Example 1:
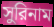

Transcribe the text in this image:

সুরিনাম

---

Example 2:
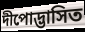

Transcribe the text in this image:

দীপোদ্ভাসিত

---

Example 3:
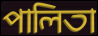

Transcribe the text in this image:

পালিতা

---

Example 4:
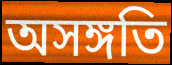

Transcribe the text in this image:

অসঙ্গতি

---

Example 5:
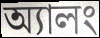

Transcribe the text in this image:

অ্যালং